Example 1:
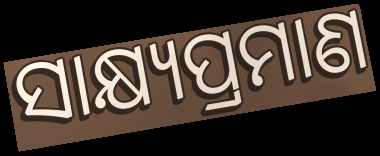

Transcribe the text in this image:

ସାକ୍ଷ୍ୟପ୍ରମାଣ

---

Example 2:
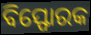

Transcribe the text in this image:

ବିସ୍ଫୋରକ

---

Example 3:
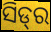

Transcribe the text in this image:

ସିଡ୍‌ର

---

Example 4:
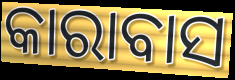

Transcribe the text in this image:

କାରାବାସ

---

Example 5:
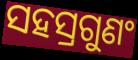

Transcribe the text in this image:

ସହସ୍ରଗୁଣଂ